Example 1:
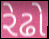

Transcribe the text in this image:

રેઢો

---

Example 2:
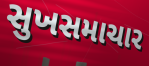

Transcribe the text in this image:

સુખસમાચાર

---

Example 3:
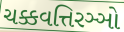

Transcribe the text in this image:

ચક્કવત્તિરઞ્ઞો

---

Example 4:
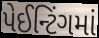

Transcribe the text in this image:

પેઈન્ટિંગમાં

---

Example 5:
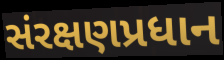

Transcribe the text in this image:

સંરક્ષણપ્રધાન